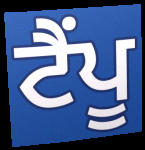
ਟੈਂਪੂ